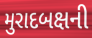
મુરાદબક્ષની